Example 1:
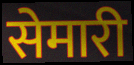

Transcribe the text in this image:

सेमारी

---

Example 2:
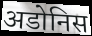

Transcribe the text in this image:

अडोनिस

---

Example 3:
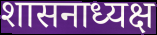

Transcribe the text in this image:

शासनाध्यक्ष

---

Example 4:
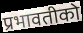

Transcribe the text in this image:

प्रभावतीको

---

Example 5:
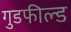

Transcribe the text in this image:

गुडफील्ड